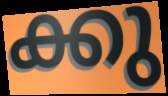
ക്കു